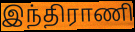
இந்திராணி